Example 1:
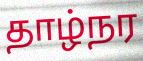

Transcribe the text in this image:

தாழ்நர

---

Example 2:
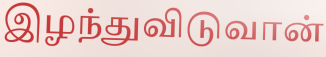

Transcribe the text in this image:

இழந்துவிடுவான்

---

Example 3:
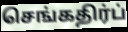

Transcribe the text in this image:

செங்கதிர்ப்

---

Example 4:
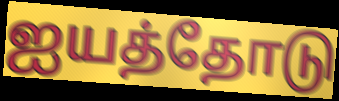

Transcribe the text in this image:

ஐயத்தோடு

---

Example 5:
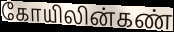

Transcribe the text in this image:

கோயிலின்கண்